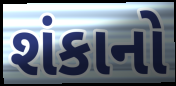
શંકાનો